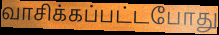
வாசிக்கப்பட்டபோது